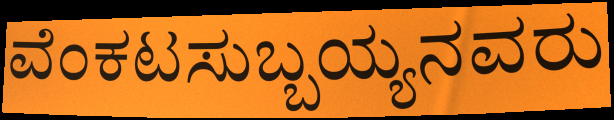
ವೆಂಕಟಸುಬ್ಬಯ್ಯನವರು